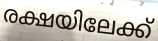
രക്ഷയിലേക്ക്